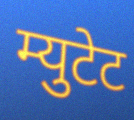
म्युटेट